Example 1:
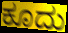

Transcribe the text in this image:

ಕೂದು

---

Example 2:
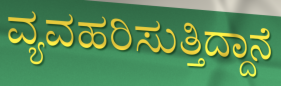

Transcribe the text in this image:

ವ್ಯವಹರಿಸುತ್ತಿದ್ದಾನೆ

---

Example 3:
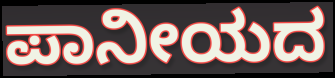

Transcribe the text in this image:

ಪಾನೀಯದ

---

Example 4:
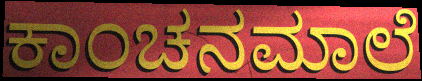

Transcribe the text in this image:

ಕಾಂಚನಮಾಲೆ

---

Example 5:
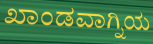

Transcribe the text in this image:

ಖಾಂಡವಾಗ್ನಿಯ